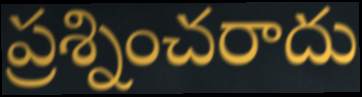
ప్రశ్నించరాదు